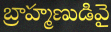
బ్రాహ్మణుడివై